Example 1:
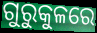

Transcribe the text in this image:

ଗୁରୁକୁଳରେ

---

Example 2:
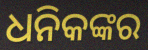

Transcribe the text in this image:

ଧନିକଙ୍କର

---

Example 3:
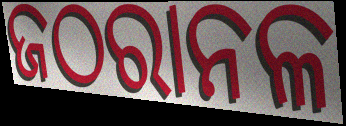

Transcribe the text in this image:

ଜଠରାନଳ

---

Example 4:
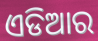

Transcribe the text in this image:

ଏଡିଆର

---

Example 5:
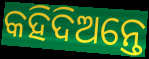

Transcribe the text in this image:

କହିଦିଅନ୍ତେ